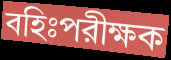
বহিঃপরীক্ষক